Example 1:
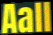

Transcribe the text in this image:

Aall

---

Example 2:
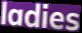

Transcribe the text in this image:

ladies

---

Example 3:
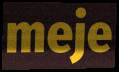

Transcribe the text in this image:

meje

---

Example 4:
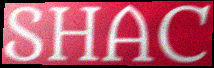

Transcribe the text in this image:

SHAC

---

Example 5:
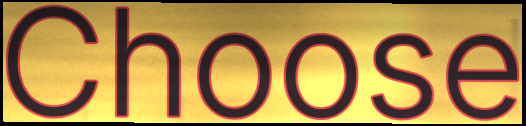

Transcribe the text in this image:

Choose